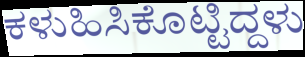
ಕಳುಹಿಸಿಕೊಟ್ಟಿದ್ದಳು